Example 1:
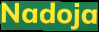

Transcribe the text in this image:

Nadoja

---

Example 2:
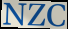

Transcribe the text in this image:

NZC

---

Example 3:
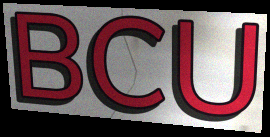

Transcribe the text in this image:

BCU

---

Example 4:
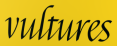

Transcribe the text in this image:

vultures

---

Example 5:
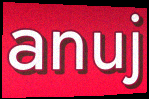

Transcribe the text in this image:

anuj